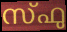
സ്ഫു